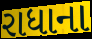
રાધાના